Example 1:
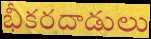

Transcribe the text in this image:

భీకరదాడులు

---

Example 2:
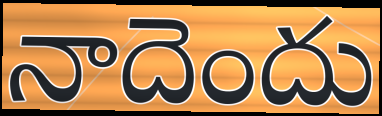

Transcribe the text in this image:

నాదెందు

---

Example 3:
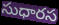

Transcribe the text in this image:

సుధారస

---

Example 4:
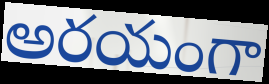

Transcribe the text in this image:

అరయంగా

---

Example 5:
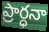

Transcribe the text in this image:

ప్రార్ధనా